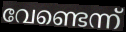
വേണ്ടെന്ന്